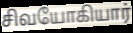
சிவயோகியார்